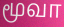
மூவா